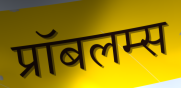
प्रॉबलम्स